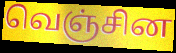
வெஞ்சின